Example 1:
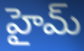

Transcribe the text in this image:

హైమ్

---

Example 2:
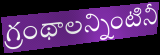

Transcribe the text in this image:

గ్రంథాలన్నింటినీ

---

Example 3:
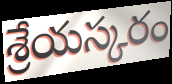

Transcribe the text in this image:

శ్రేయస్కరం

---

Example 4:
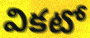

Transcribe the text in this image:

వికటో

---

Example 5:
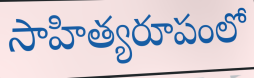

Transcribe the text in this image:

సాహిత్యరూపంలో